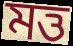
মত্ত